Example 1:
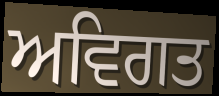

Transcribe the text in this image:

ਅਵਿਗਤ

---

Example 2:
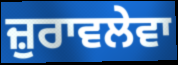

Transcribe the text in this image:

ਜ਼ੁਰਾਵਲੇਵਾ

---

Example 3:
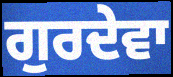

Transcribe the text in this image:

ਗੁਰਦੇਵਾ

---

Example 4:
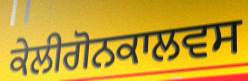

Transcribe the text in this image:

ਕੇਲੀਗੋਨਕਾਲਵਸ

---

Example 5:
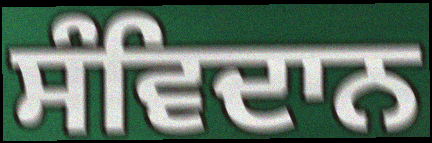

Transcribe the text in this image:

ਸੰਵਿਦਾਨ